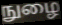
நுழை